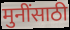
मुनींसाठी